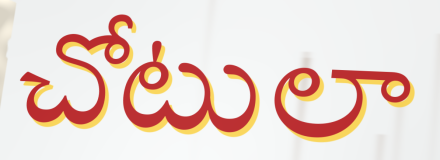
చోటులా